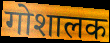
गोशालक